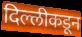
दिल्लीकडून